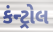
કંન્ટ્રોલ